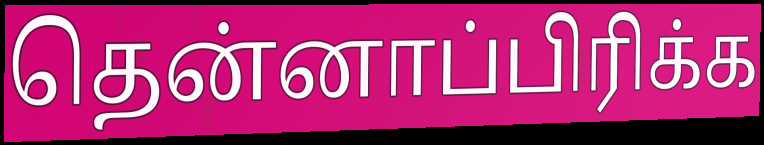
தென்னாப்பிரிக்க